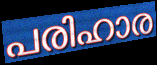
പരിഹാര